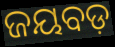
ଜୟବଡ଼